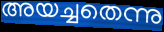
അയച്ചതെന്നു